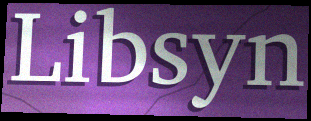
Libsyn